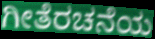
ಗೀತೆರಚನೆಯ